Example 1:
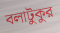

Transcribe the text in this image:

বলাটুকুর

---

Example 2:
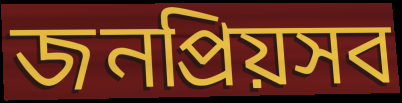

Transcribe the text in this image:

জনপ্রিয়সব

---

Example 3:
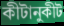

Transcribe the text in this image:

কীটানুকীট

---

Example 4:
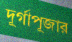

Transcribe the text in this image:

দূর্গাপূজার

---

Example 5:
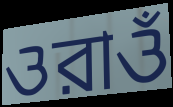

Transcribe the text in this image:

ওরাওঁ